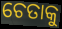
ଚେତାକୁ